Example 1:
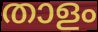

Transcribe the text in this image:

താളം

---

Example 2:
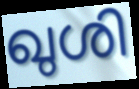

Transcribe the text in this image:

ഖുശി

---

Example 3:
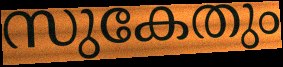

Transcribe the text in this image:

സുകേതും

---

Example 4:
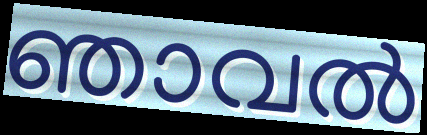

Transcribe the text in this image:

ഞാവൽ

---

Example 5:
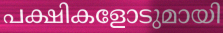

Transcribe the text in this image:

പക്ഷികളോടുമായി